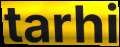
tarhi